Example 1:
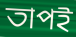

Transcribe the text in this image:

তাপই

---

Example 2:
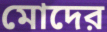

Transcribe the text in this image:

মোদের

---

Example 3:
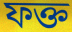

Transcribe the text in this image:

ফক্ত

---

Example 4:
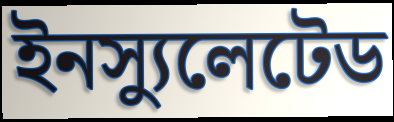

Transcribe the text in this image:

ইনস্যুলেটেড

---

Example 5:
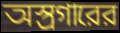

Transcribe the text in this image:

অস্ত্রগারের